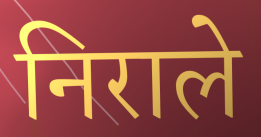
निराले